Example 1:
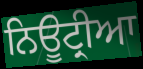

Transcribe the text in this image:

ਨਿਊਟ੍ਰੀਆ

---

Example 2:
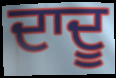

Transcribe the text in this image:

ਦਾਦੂ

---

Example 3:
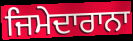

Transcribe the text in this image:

ਜਿਮੇਦਾਰਾਨਾ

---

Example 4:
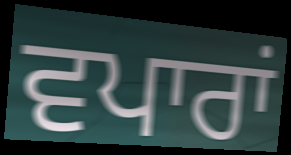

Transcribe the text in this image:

ਵਪਾਰਾਂ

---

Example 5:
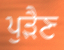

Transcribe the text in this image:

ਪੁੜੈਣ